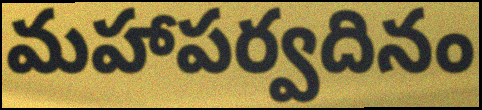
మహాపర్వదినం